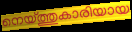
നെയ്ത്തുകാരിയായ